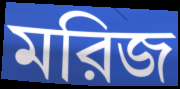
মরিজ